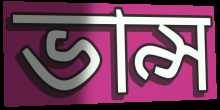
ভান্স